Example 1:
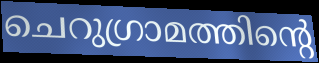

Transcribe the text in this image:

ചെറുഗ്രാമത്തിന്റെ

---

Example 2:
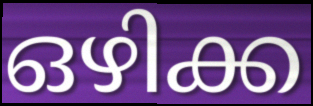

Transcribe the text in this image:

ഒഴിക്ക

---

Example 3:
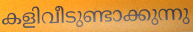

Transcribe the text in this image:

കളിവീടുണ്ടാക്കുന്നു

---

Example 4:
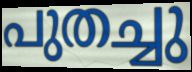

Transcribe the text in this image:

പുതച്ചു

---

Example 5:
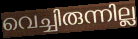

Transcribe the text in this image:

വെച്ചിരുന്നില്ല